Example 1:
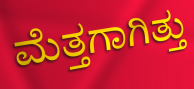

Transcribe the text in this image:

ಮೆತ್ತಗಾಗಿತ್ತು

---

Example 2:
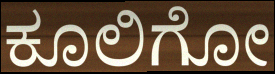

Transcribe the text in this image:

ಕೂಲಿಗೋ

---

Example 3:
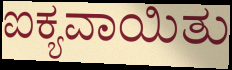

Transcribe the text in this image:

ಐಕ್ಯವಾಯಿತು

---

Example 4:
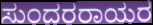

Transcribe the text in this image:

ಸುಂದರರಾಯರ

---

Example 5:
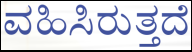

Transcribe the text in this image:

ವಹಿಸಿರುತ್ತದೆ